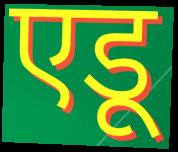
एडू